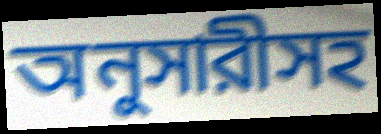
অনুসারীসহ